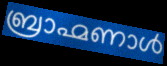
ബ്രാഹ്മണാൾ